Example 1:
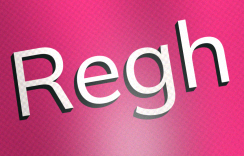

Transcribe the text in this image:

Regh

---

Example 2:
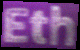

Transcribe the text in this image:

Eth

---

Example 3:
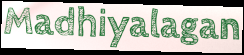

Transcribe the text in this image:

Madhiyalagan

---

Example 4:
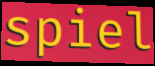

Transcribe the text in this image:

spiel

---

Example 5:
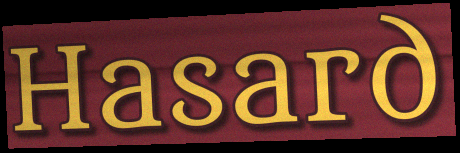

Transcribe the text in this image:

Hasard